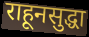
राहूनसुद्धा